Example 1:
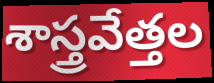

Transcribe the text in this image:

శాస్త్రవేత్తల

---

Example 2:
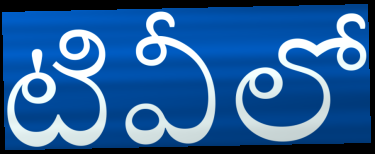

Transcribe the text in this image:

టివీలో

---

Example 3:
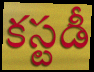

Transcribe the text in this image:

కస్టడీ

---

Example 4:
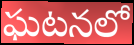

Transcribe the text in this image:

ఘటనలో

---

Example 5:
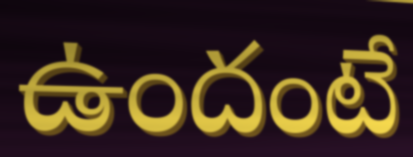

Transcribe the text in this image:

ఉందంటే